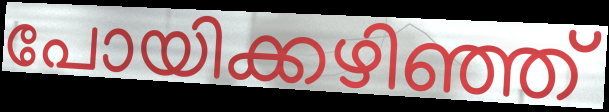
പോയിക്കഴിഞ്ഞ്